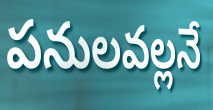
పనులవల్లనే